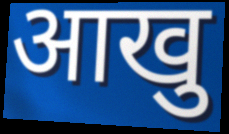
आखु